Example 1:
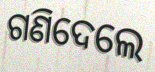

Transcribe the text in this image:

ଗଣିଦେଲେ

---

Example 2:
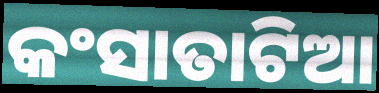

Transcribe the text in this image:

କଂସାତାଟିଆ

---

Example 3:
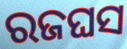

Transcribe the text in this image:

ରଜଘସ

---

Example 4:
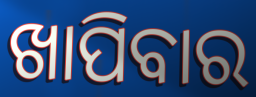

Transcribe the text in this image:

ଖାପିବାର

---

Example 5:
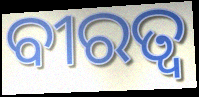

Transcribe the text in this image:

ବୀରତ୍ଵ